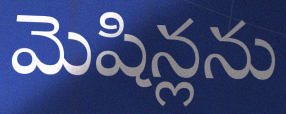
మెషిన్లను